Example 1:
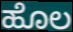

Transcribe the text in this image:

ಹೊಲ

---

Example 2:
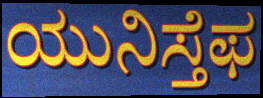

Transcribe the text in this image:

ಯುನಿಸ್ತೆಫ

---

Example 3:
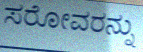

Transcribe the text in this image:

ಸರೋವರನ್ನು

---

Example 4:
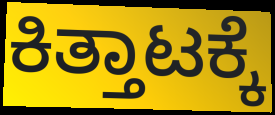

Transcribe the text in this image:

ಕಿತ್ತಾಟಕ್ಕೆ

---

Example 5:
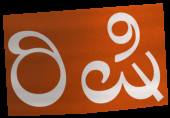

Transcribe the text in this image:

ರಿಷಿ